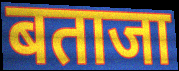
बताजा